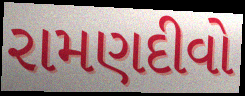
રામણદીવો